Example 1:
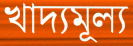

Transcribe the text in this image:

খাদ্যমূল্য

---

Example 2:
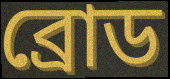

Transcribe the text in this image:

ব্রোড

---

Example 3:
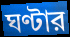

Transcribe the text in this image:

ঘণ্টার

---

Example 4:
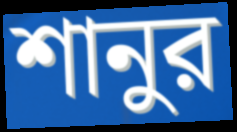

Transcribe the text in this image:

শানুর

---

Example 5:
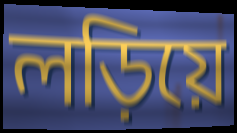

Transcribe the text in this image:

লড়িয়ে